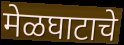
मेळघाटाचे